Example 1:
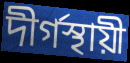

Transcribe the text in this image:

দীর্গস্থায়ী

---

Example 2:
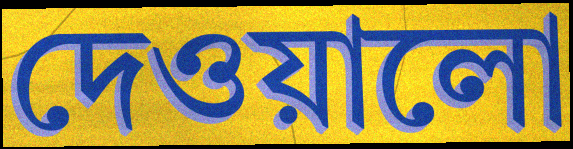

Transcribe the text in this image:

দেওয়ালো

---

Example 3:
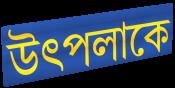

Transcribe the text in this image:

উৎপলাকে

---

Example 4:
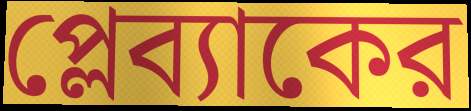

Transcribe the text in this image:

প্লেব্যাকের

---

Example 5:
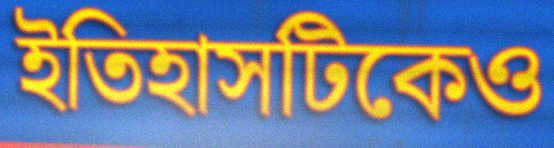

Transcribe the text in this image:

ইতিহাসটিকেও